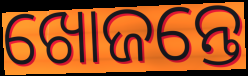
ଖୋଜନ୍ତେ